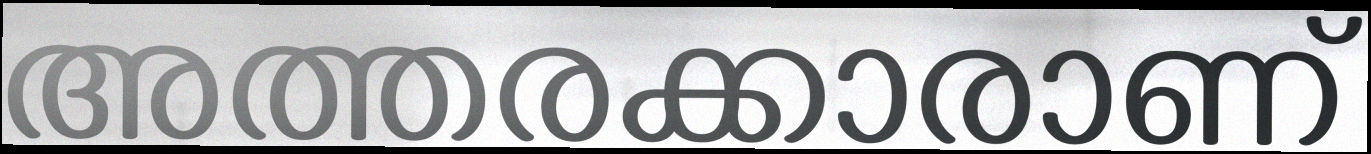
അത്തരക്കാരാണ്